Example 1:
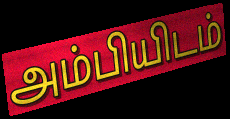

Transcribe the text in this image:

அம்பியிடம்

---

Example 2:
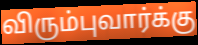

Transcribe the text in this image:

விரும்புவார்க்கு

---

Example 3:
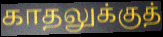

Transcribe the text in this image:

காதலுக்குத்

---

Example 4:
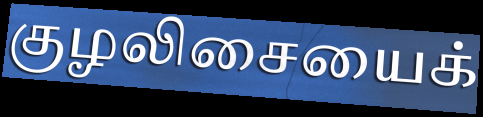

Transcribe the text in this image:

குழலிசையைக்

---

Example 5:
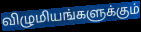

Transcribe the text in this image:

விழுமியங்களுக்கும்